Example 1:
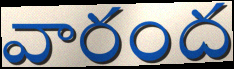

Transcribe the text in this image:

వారంద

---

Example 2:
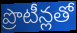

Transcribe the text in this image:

ప్రొటీన్లతో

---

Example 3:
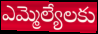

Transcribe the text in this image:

ఎమ్మెల్యేలకు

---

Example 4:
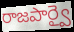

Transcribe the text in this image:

రాజపార్వై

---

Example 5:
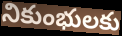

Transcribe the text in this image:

నికుంభులకు